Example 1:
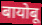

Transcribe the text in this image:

बायोबू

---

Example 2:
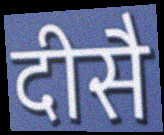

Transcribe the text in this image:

दीसै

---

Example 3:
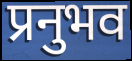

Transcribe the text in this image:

प्रनुभव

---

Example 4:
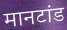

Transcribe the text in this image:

मानटांड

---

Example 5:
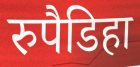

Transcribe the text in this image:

रुपैडिहा